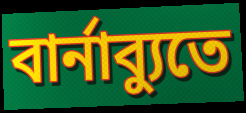
বার্নাব্যুতে